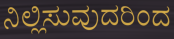
ನಿಲ್ಲಿಸುವುದರಿಂದ